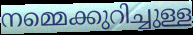
നമ്മെക്കുറിച്ചുള്ള